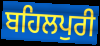
ਬਹਿਲਪੁਰੀ